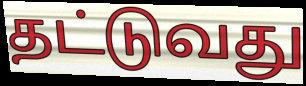
தட்டுவது